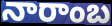
నారాంబ